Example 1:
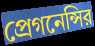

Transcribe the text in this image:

প্রেগনেন্সির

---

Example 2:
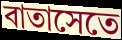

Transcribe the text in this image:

বাতাসেতে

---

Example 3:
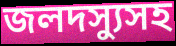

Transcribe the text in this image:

জলদস্যুসহ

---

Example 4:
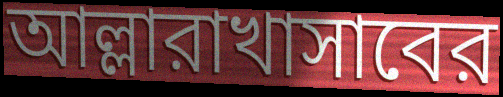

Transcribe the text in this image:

আল্লারাখাসাবের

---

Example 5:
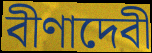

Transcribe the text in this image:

বীণাদেবী